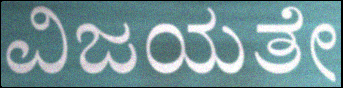
ವಿಜಯತೇ